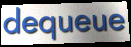
dequeue